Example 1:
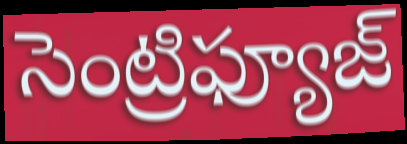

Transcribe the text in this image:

సెంట్రిఫ్యూజ్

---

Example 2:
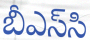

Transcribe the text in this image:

బీఎస్‌సి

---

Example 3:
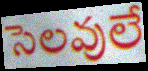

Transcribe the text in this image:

సెలవులే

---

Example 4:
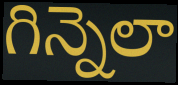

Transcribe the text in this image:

గిన్నెలా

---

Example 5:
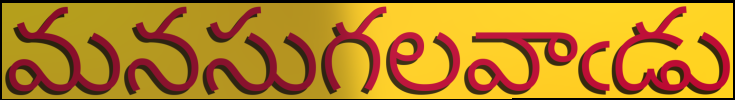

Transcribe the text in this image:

మనసుగలవాఁడు